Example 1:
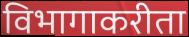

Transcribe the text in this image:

विभागाकरीता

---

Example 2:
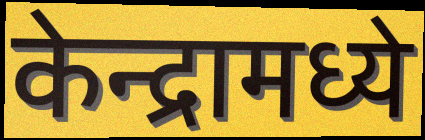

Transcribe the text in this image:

केन्द्रामध्ये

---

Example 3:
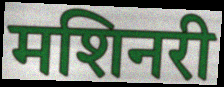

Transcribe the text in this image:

मशिनरी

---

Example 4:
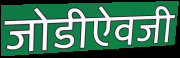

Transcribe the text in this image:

जोडीऐवजी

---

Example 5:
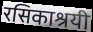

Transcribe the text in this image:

रसिकाश्रयी